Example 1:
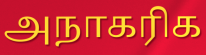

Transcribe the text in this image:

அநாகரிக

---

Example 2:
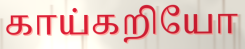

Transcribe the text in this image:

காய்கறியோ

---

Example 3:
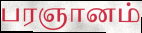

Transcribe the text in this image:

பரஞானம்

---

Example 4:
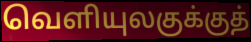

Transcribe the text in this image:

வெளியுலகுக்குத்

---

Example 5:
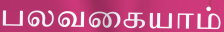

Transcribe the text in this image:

பலவகையாம்